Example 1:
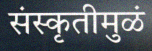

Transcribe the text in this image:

संस्कृतीमुळं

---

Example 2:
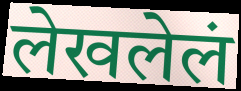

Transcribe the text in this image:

लेखलेलं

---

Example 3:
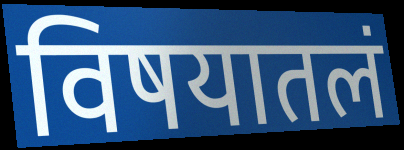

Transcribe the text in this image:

विषयातलं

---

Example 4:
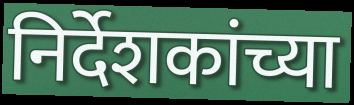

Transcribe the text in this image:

निर्देशकांच्या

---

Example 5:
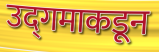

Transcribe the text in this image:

उद्‌गमाकडून